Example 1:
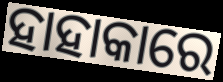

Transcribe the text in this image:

ହାହାକାରେ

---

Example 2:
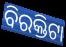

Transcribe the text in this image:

ବିରକ୍ତିଟା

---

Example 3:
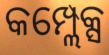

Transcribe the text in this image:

କମ୍ପ୍ଲେକ୍ସ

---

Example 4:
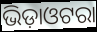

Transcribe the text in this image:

ଭିଡ଼ାଓଟରା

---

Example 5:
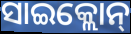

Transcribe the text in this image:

ସାଇକ୍ଲୋନ୍